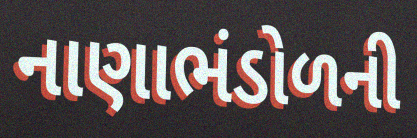
નાણાભંડોળની